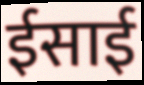
ईसाई